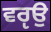
ਵਰੵਉ